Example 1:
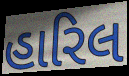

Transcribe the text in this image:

હારિલ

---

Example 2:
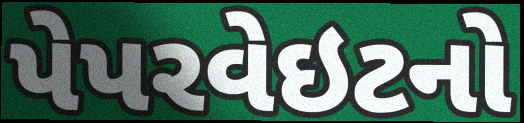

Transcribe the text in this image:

પેપરવેઇટનો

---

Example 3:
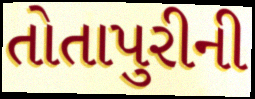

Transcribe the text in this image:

તોતાપુરીની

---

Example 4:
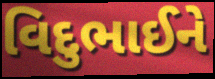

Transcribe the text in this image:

વિદુભાઈને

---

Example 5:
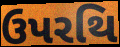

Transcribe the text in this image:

ઉપરથિ